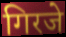
गिरजे